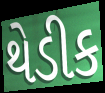
થેડીક